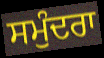
ਸਮੁੰਦਰਾ